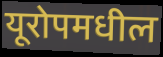
यूरोपमधील